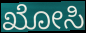
ಖೋಸಿ